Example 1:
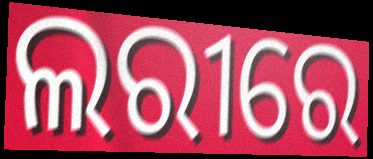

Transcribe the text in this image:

ଲରୀରେ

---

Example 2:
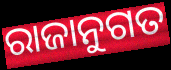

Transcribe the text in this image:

ରାଜାନୁଗତ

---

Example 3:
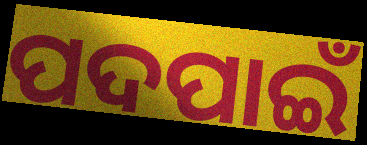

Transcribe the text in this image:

ପଦପାଇଁ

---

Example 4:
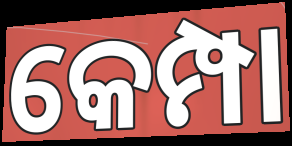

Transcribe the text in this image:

କେମ୍ପା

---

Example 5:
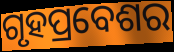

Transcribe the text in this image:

ଗୃହପ୍ରବେଶର